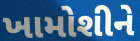
ખામોશીને